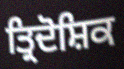
ਤ੍ਰਿਦੋਸ਼ਿਕ